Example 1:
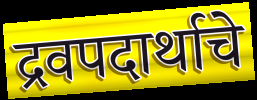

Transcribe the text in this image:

द्रवपदार्थाचे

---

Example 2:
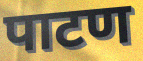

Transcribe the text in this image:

पाटण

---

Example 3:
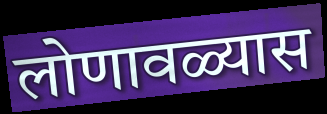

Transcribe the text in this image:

लोणावळ्यास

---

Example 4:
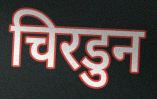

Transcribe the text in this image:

चिरडुन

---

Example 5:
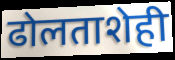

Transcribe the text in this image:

ढोलताशेही